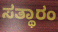
ಸತ್ಥಾರಂ